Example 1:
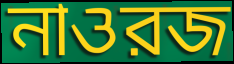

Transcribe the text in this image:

নাওরজ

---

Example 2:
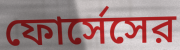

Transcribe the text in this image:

ফোর্সেসের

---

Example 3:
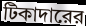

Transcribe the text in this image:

টিকাদারের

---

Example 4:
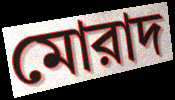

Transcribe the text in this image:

মোরাদ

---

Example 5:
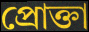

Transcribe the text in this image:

প্রোক্তা